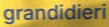
grandidieri